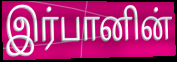
இர்பானின்